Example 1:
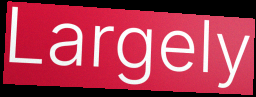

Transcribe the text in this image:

Largely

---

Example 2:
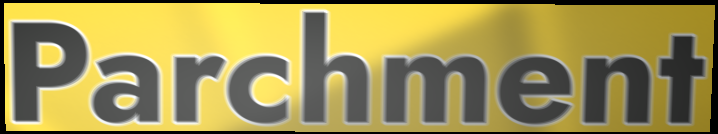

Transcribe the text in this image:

Parchment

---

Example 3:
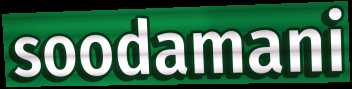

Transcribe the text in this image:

soodamani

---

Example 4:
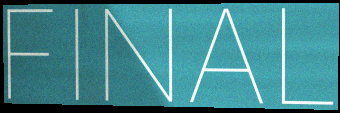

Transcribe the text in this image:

FINAL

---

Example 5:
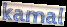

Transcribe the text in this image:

kamal